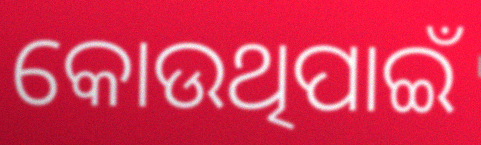
କୋଉଥିପାଇଁ